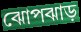
ঝোপঝাড়